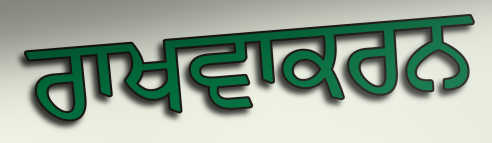
ਰਾਖਵਾਕਰਨ